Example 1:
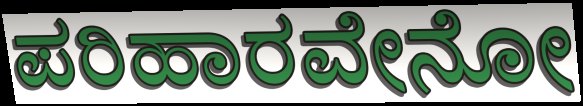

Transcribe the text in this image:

ಪರಿಹಾರವೇನೋ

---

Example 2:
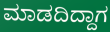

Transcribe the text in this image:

ಮಾಡದಿದ್ದಾಗ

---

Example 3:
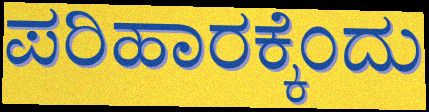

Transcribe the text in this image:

ಪರಿಹಾರಕ್ಕೆಂದು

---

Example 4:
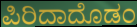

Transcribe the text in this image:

ಪಿರಿದಾದೊಡಂ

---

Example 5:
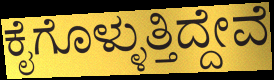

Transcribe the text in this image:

ಕೈಗೊಳ್ಳುತ್ತಿದ್ದೇವೆ